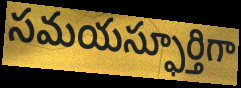
సమయస్ఫూర్తిగా